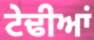
ਟੇਢੀਆਂ